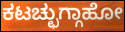
ಕಟಚ್ಛುಗ್ಗಾಹೋ